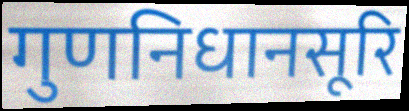
गुणनिधानसूरि